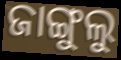
ଜାଙ୍ଗୁଲୁ